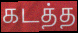
கடத்த